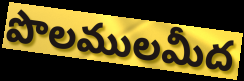
పొలములమీద